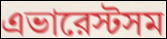
এভারেস্টসম